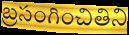
బ్రసంగించితిని